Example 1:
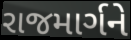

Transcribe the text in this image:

રાજમાર્ગને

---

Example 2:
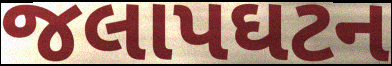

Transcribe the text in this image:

જલાપઘટન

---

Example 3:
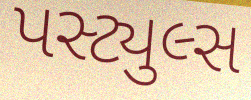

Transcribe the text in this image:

પસ્ટ્યુલ્સ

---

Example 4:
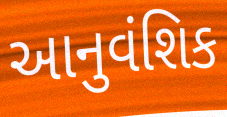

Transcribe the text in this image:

આનુવંશિક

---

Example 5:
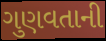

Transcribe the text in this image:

ગુણવતાની